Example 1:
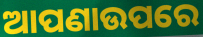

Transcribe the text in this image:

ଆପଣାଉପରେ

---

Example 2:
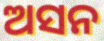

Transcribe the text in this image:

ଅସନ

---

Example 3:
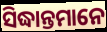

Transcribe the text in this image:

ସିଦ୍ଧାନ୍ତମାନେ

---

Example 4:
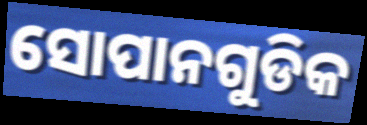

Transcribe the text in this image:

ସୋପାନଗୁଡିକ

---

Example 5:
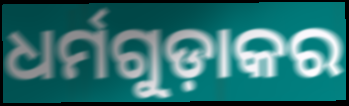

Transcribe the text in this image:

ଧର୍ମଗୁଡ଼ାକର